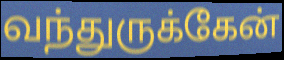
வந்துருக்கேன்